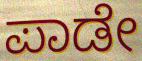
ಪಾಡೇ